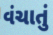
વંચાતું